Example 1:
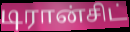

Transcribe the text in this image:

டிரான்சிட்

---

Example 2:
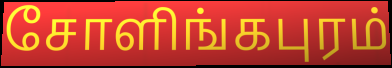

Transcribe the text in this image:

சோளிங்கபுரம்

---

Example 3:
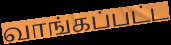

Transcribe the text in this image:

வாங்கப்பட்ட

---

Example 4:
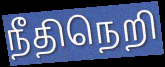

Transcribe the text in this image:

நீதிநெறி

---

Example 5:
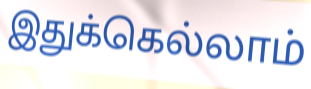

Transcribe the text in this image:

இதுக்கெல்லாம்